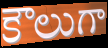
కౌలుగా